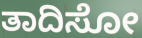
ತಾದಿಸೋ